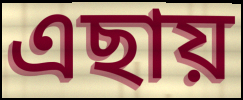
এছায়